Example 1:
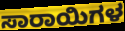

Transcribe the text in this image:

ಸಾರಾಯಿಗಳ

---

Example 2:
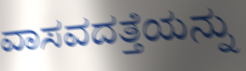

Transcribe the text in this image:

ವಾಸವದತ್ತೆಯನ್ನು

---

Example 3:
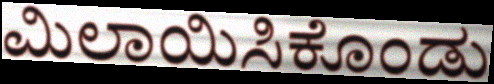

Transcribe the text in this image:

ಮಿಲಾಯಿಸಿಕೊಂಡು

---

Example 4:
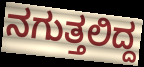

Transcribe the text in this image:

ನಗುತ್ತಲಿದ್ದ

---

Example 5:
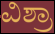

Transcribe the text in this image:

ವಿಶ್ರಾ